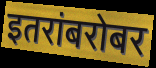
इतरांबरोबर